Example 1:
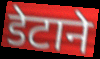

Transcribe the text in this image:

डेटाने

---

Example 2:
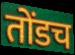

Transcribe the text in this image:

तोंडच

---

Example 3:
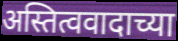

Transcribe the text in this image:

अस्तित्ववादाच्या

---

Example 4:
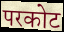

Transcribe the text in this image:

परकोट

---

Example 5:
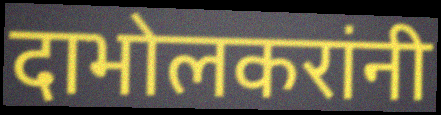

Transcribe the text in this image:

दाभोलकरांनी